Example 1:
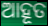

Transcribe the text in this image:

ଆହୂତ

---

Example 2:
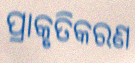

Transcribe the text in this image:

ପ୍ରାକୃତିକରଣ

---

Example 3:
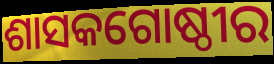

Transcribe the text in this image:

ଶାସକଗୋଷ୍ଠୀର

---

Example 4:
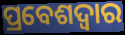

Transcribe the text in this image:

ପ୍ରବେଶଦ୍ଵାର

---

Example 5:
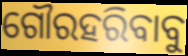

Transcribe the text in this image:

ଗୌରହରିବାବୁ